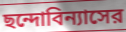
ছন্দোবিন্যাসের